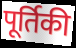
पूर्तिकी